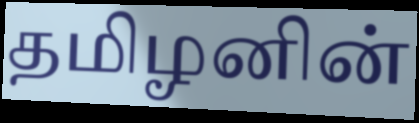
தமிழனின்